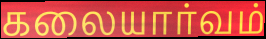
கலையார்வம்